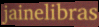
jainelibras